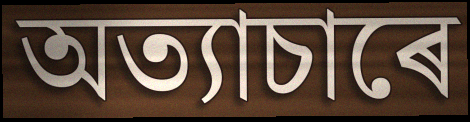
অত্যাচাৰে